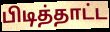
பிடித்தாட்ட